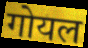
गोयल